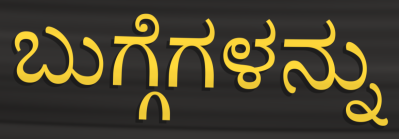
ಬುಗ್ಗೆಗಳನ್ನು